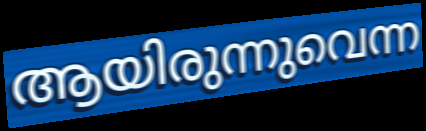
ആയിരുന്നുവെന്ന